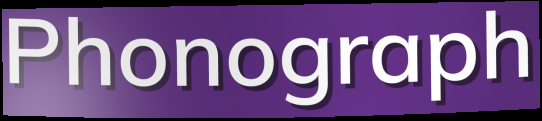
Phonograph